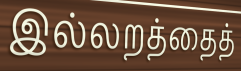
இல்லறத்தைத்